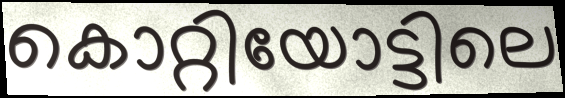
കൊറ്റിയോട്ടിലെ